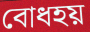
বোধহয়